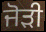
ਜੋਡ਼ੀ